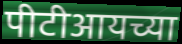
पीटीआयच्या